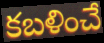
కబళించే